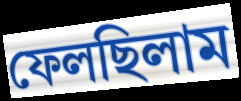
ফেলছিলাম